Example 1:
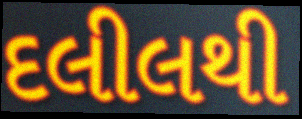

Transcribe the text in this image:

દલીલથી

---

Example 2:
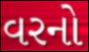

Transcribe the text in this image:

વરનો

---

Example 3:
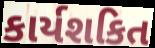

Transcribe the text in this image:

કાર્યશકિત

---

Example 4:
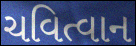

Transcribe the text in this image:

ચવિત્વાન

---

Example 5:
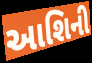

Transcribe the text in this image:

આશિની